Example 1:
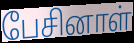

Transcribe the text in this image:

பேசினாள்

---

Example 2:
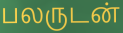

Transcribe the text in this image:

பலருடன்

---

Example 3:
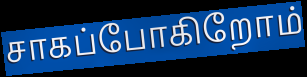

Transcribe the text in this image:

சாகப்போகிறோம்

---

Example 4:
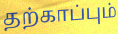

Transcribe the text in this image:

தற்காப்பும்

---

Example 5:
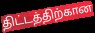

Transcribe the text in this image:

திட்டத்திற்கான